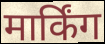
मार्किंग